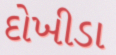
દોખીડા